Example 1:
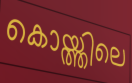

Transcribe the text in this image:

കൊയ്ത്തിലെ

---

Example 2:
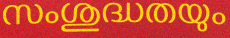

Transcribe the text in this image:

സംശുദ്ധതയും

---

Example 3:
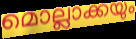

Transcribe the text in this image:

മൊല്ലാക്കയും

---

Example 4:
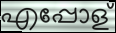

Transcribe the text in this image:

എപ്പോള്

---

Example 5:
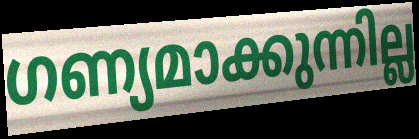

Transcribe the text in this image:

ഗണ്യമാക്കുന്നില്ല